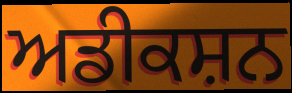
ਅਡੀਕਸ਼ਨ